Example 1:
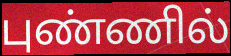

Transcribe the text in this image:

புண்ணில்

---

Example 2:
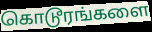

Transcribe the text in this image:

கொடூரங்களை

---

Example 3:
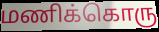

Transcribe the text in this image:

மணிக்கொரு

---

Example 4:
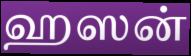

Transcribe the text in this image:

ஹஸன்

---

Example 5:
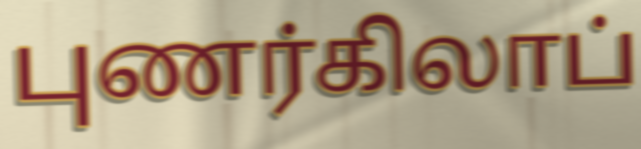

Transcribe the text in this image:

புணர்கிலாப்